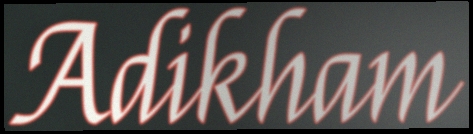
Adikham